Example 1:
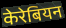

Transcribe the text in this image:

केरेबियन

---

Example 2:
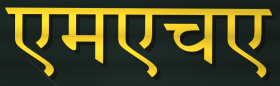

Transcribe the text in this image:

एमएचए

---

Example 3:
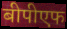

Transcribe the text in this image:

बीपीएफ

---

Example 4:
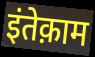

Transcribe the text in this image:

इंतेक़ाम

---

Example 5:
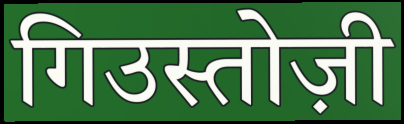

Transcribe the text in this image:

गिउस्तोज़ी